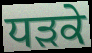
ਧੜਕੇ